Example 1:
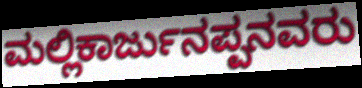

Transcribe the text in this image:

ಮಲ್ಲಿಕಾರ್ಜುನಪ್ಪನವರು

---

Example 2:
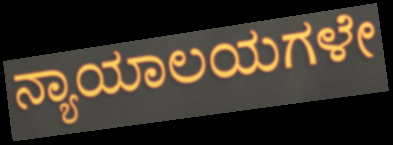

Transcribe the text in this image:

ನ್ಯಾಯಾಲಯಗಳೇ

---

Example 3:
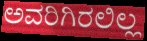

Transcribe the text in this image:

ಅವರಿಗಿರಲಿಲ್ಲ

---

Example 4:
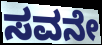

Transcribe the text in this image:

ಸವನೇ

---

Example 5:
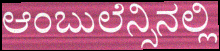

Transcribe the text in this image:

ಆಂಬುಲೆನ್ಸಿನಲ್ಲಿ